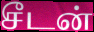
சீடன்